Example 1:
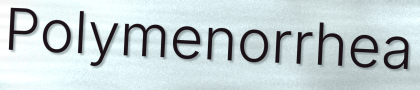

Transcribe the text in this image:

Polymenorrhea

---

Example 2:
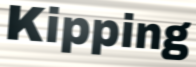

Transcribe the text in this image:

Kipping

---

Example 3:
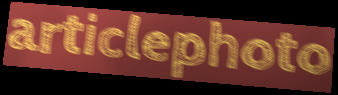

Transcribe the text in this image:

articlephoto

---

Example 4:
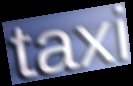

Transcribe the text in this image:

taxi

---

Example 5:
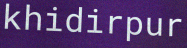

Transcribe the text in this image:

khidirpur